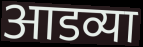
आडव्या